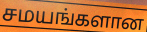
சமயங்களான